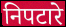
निपटारे